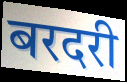
बरदरी